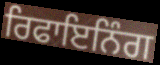
ਰਿਫਾਇਨਿੰਗ